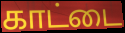
காட்டை